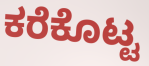
ಕರೆಕೊಟ್ಟ